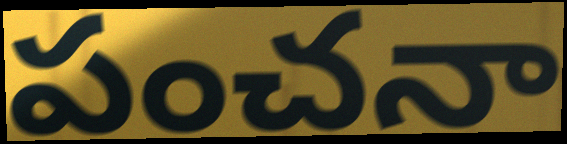
పంచనా